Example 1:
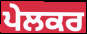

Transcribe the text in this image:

ਪੇਲਕਰ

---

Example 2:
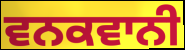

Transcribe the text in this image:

ਵਨਕਵਾਨੀ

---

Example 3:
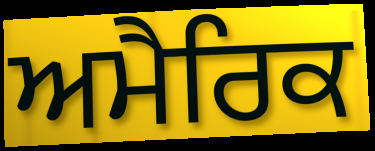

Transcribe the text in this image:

ਅਮੈਰਿਕ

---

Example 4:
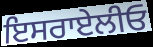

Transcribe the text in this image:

ਇਸਰਾਏਲੀਓ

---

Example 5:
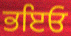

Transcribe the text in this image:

ਭਇਓ